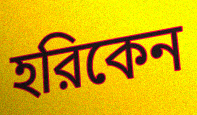
হরিকেন